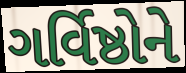
ગર્વિષ્ઠોને